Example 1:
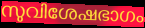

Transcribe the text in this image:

സുവിശേഷഭാഗം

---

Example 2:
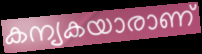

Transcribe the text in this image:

കന്യകയാരാണ്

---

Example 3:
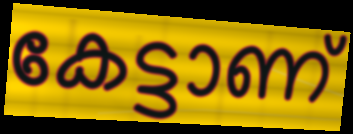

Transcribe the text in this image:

കേട്ടാണ്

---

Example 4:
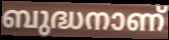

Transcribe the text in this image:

ബുദ്ധനാണ്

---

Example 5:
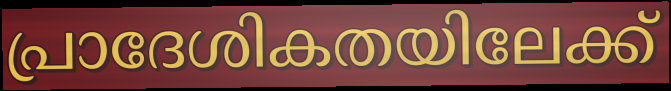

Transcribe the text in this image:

പ്രാദേശികതയിലേക്ക്